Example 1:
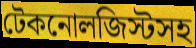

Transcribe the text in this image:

টেকনোলজিস্টসহ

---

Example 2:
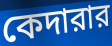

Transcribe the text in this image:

কেদারার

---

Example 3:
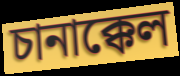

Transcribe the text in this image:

চানাক্কেল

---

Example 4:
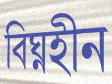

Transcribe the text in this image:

বিঘ্নহীন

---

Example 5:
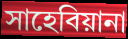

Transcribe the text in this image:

সাহেবিয়ানা